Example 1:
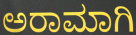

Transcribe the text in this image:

ಅರಾಮಾಗಿ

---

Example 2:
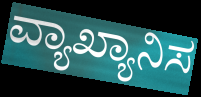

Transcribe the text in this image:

ವ್ಯಾಖ್ಯಾನಿಸ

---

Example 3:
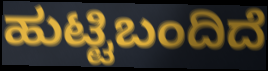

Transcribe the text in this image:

ಹುಟ್ಟಿಬಂದಿದೆ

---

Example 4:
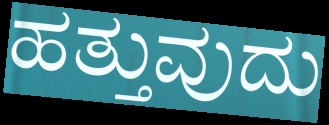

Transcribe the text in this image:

ಹತ್ತುವುದು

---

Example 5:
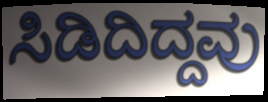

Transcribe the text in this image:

ಸಿಡಿದಿದ್ದವು